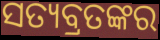
ସତ୍ୟବ୍ରତଙ୍କର